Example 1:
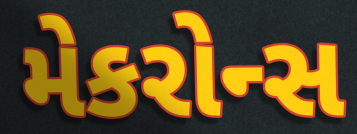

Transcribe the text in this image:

મેકરોન્સ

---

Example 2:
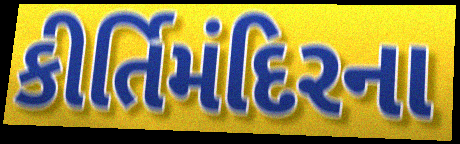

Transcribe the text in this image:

કીર્તિમંદિરના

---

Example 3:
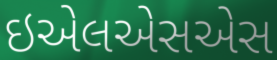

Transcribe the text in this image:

ઇએલએસએસ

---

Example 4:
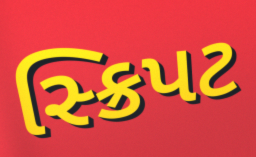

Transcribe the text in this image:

સ્ક્રિપટ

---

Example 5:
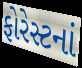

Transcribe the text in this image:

ફોરેસ્ટનાં